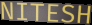
NITESH